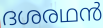
ദശരഥൻ